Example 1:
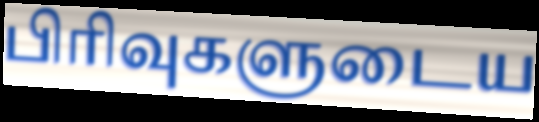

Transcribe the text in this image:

பிரிவுகளுடைய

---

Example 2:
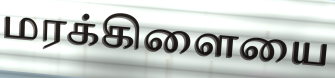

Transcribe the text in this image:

மரக்கிளையை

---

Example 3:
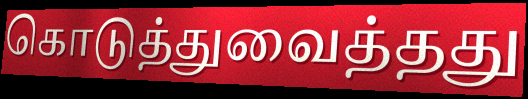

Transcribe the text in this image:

கொடுத்துவைத்தது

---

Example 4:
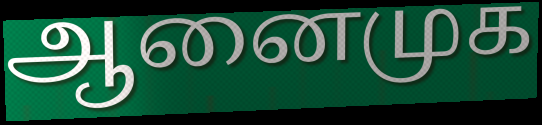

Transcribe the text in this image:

ஆனைமுக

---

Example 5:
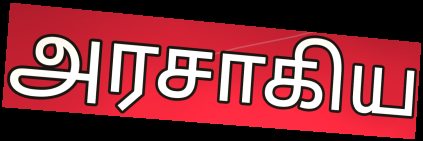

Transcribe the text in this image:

அரசாகிய